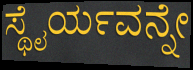
ಸ್ಥೈರ್ಯವನ್ನೇ